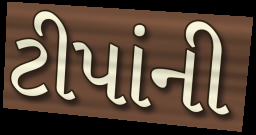
ટીપાંની